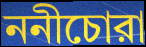
ননীচোরা